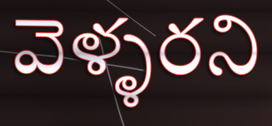
వెళ్ళరని